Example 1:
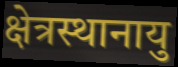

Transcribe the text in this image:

क्षेत्रस्थानायु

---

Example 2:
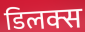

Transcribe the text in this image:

डिलक्स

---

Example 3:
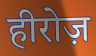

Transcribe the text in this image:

हीरोज़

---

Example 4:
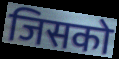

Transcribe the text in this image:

जिसको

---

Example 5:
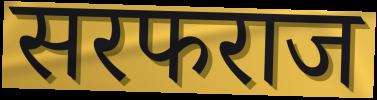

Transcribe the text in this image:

सरफराज